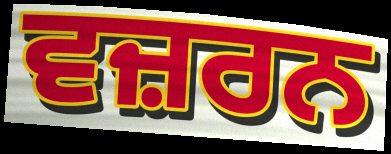
ਵਜ਼ਰਨ